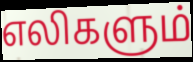
எலிகளும்